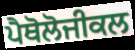
ਪੈਥੋਲੋਜੀਕਲ